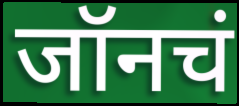
जॉनचं